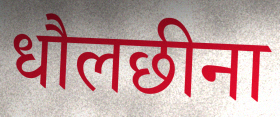
धौलछीना